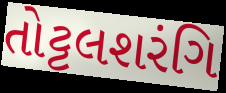
તોટ્ટલશરંગિ